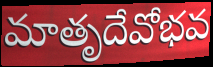
మాతృదేవోభవ